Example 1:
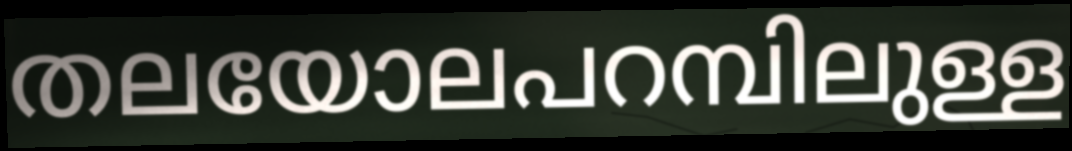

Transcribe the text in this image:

തലയോലപറമ്പിലുള്ള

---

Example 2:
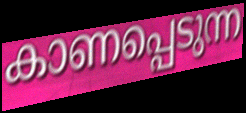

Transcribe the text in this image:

കാണപ്പെടുന്ന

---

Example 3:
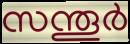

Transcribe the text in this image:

സന്തൂർ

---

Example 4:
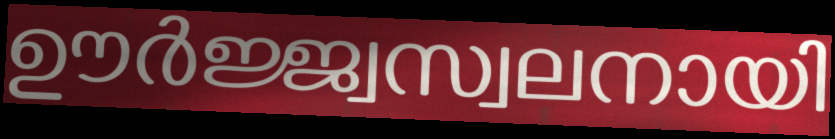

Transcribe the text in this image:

ഊർജ്ജ്വസ്വലനായി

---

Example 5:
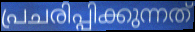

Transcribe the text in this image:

പ്രചരിപ്പിക്കുന്നത്